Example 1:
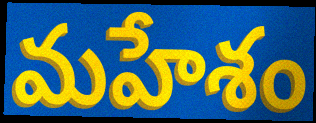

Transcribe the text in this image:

మహేశం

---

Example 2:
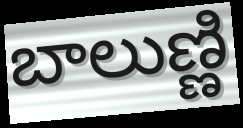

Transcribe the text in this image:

బాలుణ్ణి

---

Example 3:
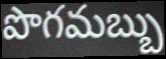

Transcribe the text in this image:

పొగమబ్బు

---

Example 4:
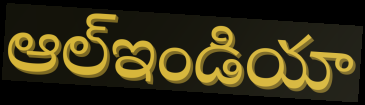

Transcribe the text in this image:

ఆల్ఇండియా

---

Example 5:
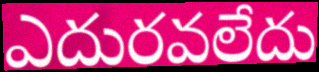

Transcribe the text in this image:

ఎదురవలేదు